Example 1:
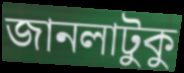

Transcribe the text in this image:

জানলাটুকু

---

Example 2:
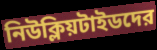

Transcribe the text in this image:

নিউক্লিয়টাইডদের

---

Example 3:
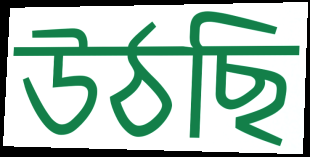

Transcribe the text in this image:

উঠছি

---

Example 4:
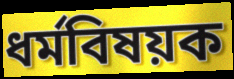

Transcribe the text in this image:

ধর্মবিষয়ক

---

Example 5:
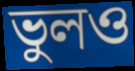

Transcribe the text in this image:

ভুলও